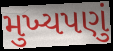
મુખ્યપણું